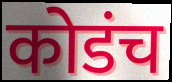
कोडंच